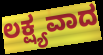
ಲಕ್ಷ್ಯವಾದ